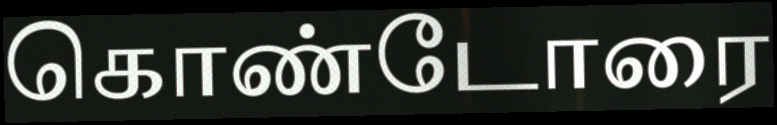
கொண்டோரை